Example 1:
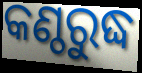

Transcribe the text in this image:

କଣ୍ଠରୁଦ୍ଧ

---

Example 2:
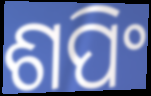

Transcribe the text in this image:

ଶପିଂ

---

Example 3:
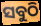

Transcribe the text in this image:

ସବୁଠି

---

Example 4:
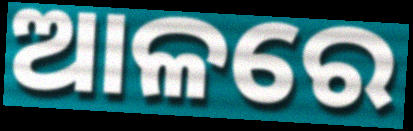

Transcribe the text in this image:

ଆଳରେ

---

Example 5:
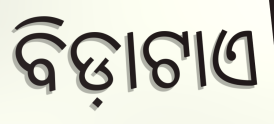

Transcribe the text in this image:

ବିଡ଼ାଟାଏ